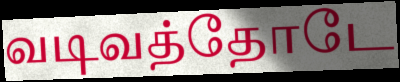
வடிவத்தோடே